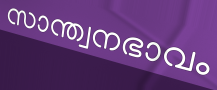
സാന്ത്വനഭാവം